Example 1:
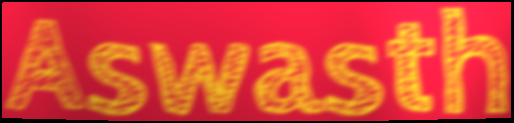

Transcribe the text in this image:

Aswasth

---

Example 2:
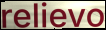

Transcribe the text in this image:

relievo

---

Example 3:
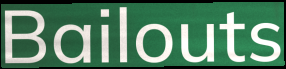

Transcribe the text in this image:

Bailouts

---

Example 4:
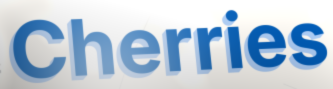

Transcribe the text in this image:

Cherries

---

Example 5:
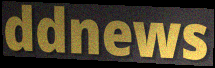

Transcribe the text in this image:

ddnews